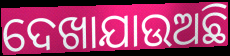
ଦେଖାଯାଉଅଛି